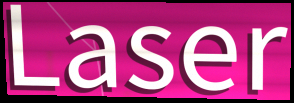
Laser